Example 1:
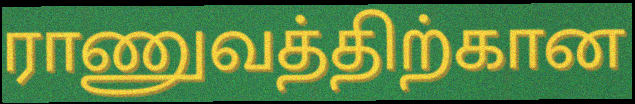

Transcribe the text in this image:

ராணுவத்திற்கான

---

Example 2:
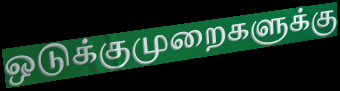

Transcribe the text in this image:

ஒடுக்குமுறைகளுக்கு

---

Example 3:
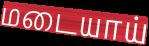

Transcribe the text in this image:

மடையாய்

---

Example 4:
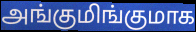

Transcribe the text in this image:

அங்குமிங்குமாக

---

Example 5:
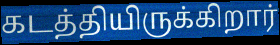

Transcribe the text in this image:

கடத்தியிருக்கிறார்